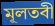
মূলতবী